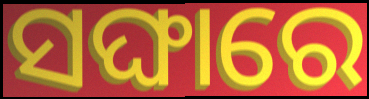
ସଙ୍ଘାରେ